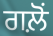
ਗਲ਼ੋਂ